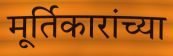
मूर्तिकारांच्या